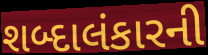
શબ્દાલંકારની